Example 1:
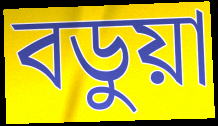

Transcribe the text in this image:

বডুয়া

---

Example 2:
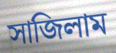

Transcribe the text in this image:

সাজিলাম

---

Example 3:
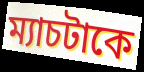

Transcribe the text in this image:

ম্যাচটাকে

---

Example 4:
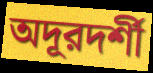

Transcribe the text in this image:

অদূরদর্শী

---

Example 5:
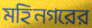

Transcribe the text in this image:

মহিনগরের